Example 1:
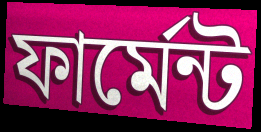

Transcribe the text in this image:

ফার্মেন্ট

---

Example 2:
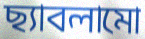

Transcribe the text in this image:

ছ্যাবলামো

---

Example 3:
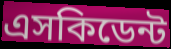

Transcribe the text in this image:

এসকিডেন্ট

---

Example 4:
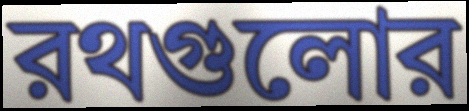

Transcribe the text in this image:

রথগুলোর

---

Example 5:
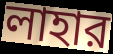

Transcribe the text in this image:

লাহার